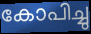
കോപിച്ചു